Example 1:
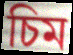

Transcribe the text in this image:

চিম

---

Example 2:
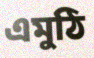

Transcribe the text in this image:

এমুঠি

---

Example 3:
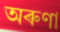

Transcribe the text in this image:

অৰুণা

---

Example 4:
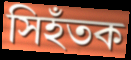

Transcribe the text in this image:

সিহঁতক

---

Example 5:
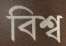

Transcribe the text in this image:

বিশ্ব